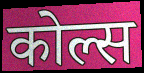
कोल्स